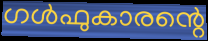
ഗൾഫുകാരന്റെ